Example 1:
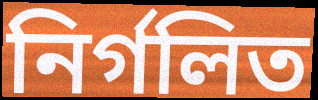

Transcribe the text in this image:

নির্গলিত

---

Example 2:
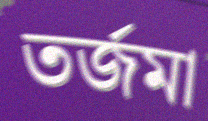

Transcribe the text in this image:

তর্জমা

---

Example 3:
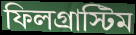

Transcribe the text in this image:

ফিলগ্রাস্টিম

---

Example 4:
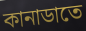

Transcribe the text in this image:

কানাডাতে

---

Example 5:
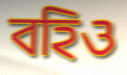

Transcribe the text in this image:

বহিও